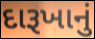
દારૂખાનું